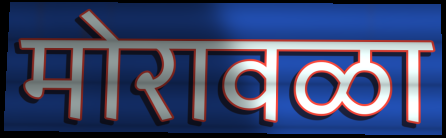
मोरावळा